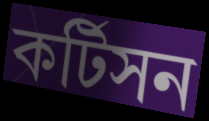
কর্টিসন